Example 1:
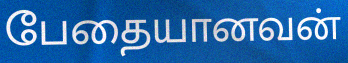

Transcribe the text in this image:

பேதையானவன்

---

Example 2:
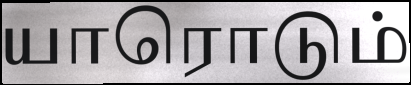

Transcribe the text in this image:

யாரொடும்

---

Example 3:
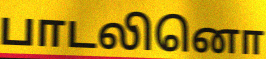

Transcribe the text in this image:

பாடலினொ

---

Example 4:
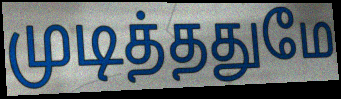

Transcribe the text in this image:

முடித்ததுமே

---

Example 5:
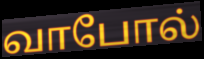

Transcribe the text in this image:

வாபோல்